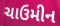
ચાઉમીન